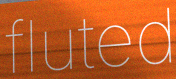
fluted